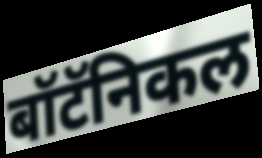
बॉटॅनिकल